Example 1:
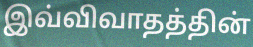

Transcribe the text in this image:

இவ்விவாதத்தின்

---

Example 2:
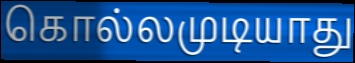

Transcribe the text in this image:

கொல்லமுடியாது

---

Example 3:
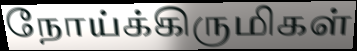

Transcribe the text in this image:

நோய்க்கிருமிகள்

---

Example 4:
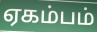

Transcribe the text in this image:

ஏகம்பம்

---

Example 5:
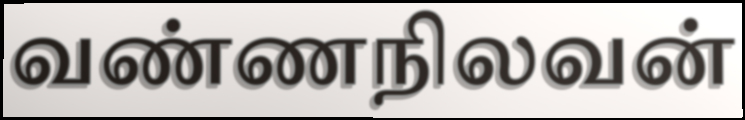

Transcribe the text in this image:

வண்ணநிலவன்